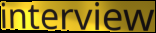
interview